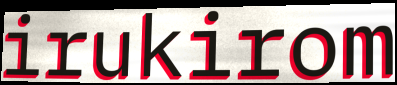
irukirom